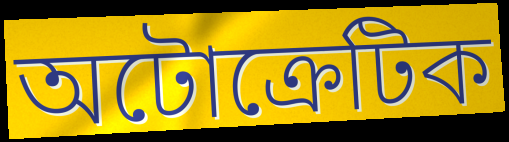
অটোক্রেটিক